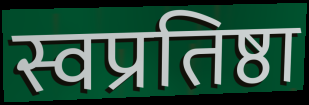
स्वप्रतिष्ठा